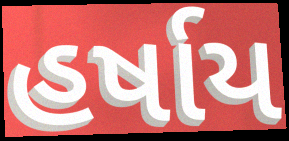
હર્ષાય